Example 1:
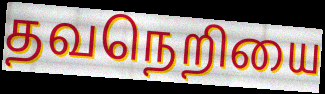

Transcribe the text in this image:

தவநெறியை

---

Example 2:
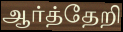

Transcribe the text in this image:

ஆர்த்தேறி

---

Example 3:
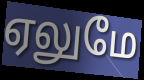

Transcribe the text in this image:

ஏலுமே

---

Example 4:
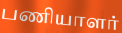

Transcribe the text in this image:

பணியாளர்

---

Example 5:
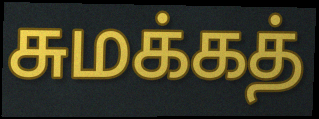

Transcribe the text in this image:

சுமக்கத்